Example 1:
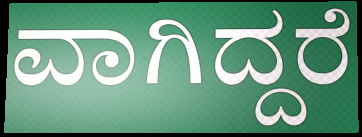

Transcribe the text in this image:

ವಾಗಿದ್ದರೆ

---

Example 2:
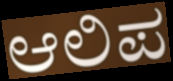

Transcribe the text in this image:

ಆಲಿಪ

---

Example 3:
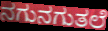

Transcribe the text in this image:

ನಗುನಗುತಲೆ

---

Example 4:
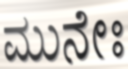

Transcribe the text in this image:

ಮುನೇಃ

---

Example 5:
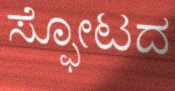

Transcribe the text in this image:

ಸ್ಫೋಟದ